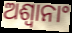
ଅଶ୍ଵାନାଂ